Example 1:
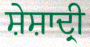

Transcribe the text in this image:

ਸ਼ੇਸ਼ਾਦ੍ਰੀ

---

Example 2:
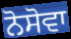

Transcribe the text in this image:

ਨੋਸੋਵਾ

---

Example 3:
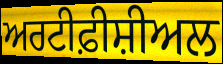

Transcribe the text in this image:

ਅਰਟੀਫ਼ੀਸ਼ੀਅਲ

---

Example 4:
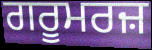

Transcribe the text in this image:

ਗਰੂਮਰਜ਼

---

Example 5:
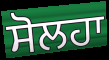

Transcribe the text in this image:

ਸੋਲਹਾ